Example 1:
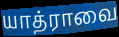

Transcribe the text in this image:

யாத்ராவை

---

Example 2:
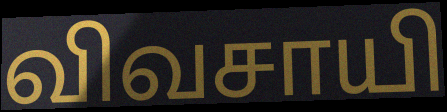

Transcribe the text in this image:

விவசாயி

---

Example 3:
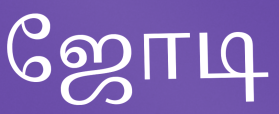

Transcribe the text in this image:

ஜோடி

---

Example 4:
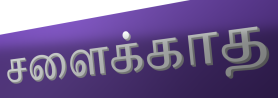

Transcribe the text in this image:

சளைக்காத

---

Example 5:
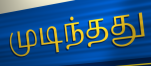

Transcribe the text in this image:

முடிந்தது